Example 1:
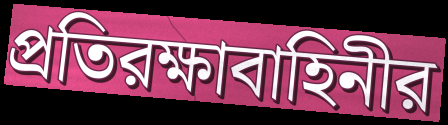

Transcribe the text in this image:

প্রতিরক্ষাবাহিনীর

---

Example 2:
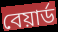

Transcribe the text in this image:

বেয়ার্ড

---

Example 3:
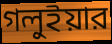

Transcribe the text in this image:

গলুইয়ার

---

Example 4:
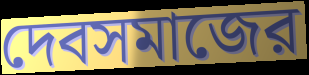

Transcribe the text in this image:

দেবসমাজের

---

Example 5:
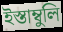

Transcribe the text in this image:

ইস্তাম্বুলি